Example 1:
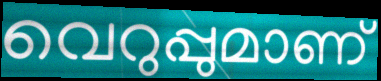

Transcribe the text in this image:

വെറുപ്പുമാണ്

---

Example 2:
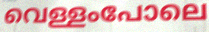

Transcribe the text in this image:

വെള്ളംപോലെ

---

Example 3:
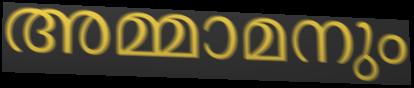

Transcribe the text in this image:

അമ്മാമനും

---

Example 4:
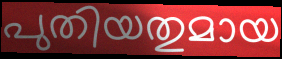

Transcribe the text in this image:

പുതിയതുമായ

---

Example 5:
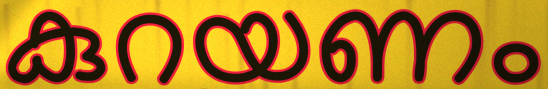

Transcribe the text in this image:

കുറയണം